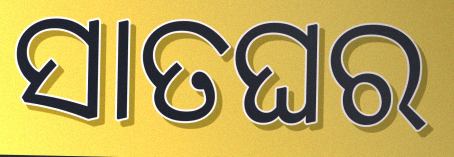
ସାତଘର